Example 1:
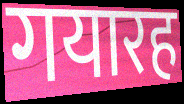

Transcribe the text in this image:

गयारह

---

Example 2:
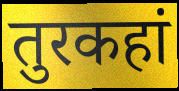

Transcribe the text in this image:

तुरकहां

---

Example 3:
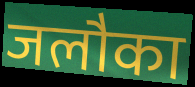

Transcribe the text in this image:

जलौका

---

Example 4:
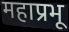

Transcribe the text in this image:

महाप्रभू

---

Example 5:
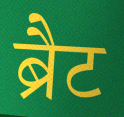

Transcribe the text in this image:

ब्रैट